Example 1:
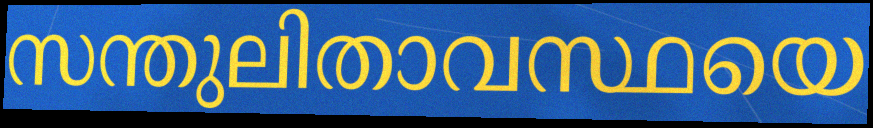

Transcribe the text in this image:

സന്തുലിതാവസ്ഥയെ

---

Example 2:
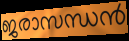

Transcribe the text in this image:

ജരാസന്ധൻ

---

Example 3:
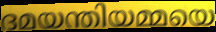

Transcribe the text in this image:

ദമയന്തിയമ്മയെ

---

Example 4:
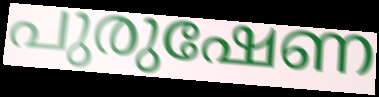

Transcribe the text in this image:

പുരുഷേണ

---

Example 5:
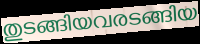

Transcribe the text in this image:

തുടങ്ങിയവരടങ്ങിയ